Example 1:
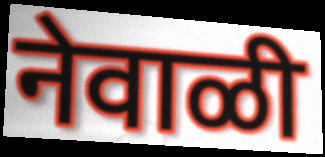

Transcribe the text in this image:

नेवाळी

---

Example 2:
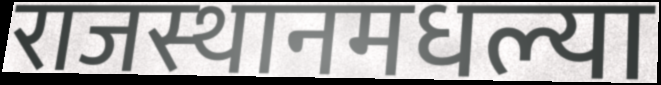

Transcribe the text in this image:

राजस्थानमधल्या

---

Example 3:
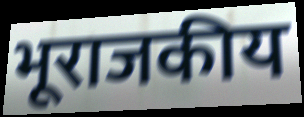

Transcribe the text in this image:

भूराजकीय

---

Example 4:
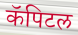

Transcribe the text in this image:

कॅपिटल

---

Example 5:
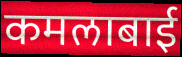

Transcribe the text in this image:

कमलाबाई